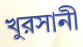
খুরসানী